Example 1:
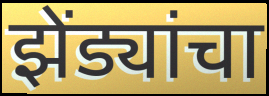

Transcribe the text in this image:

झेंड्यांचा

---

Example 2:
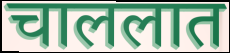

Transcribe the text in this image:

चाललात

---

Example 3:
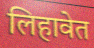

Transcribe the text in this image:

लिहावेत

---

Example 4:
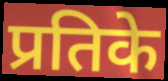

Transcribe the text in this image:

प्रतिके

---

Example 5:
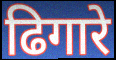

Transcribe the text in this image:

ढिगारे